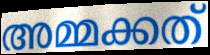
അമ്മക്കത്